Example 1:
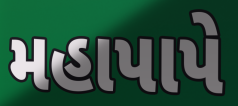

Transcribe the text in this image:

મહાપાપે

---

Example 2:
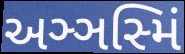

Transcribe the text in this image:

અઞ્ઞસ્મિં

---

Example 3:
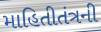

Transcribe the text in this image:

માહિતીતંત્રની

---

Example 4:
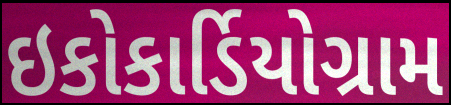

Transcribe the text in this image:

ઇકોકાર્ડિયોગ્રામ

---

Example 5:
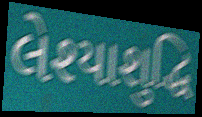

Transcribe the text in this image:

લેશ્યાશુદ્ધિ